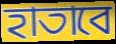
হাতাবে